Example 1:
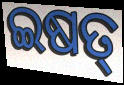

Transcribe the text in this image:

ଇଷତ୍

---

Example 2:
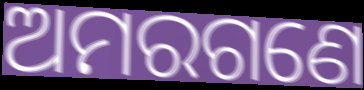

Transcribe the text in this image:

ଅମରଗଣେ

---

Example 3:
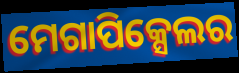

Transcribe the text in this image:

ମେଗାପିକ୍ସେଲର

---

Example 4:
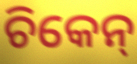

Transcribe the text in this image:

ଚିକେନ୍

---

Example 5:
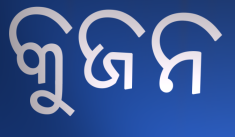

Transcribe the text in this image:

କୁଜନ